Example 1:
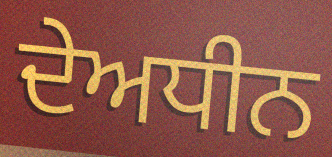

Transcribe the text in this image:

ਦੇਅਧੀਨ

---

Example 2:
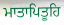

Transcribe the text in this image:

ਮਾਤਾਪਿਤੂਹਿ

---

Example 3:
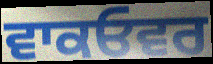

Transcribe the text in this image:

ਵਾਕਓਵਰ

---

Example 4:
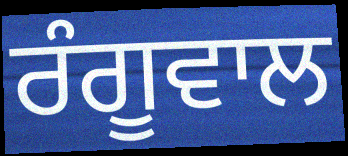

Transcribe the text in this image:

ਰੰਗੂਵਾਲ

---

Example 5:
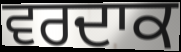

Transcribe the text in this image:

ਵਰਦਾਕ